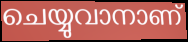
ചെയ്യുവാനാണ്